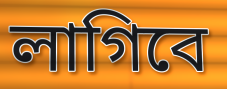
লাগিবে